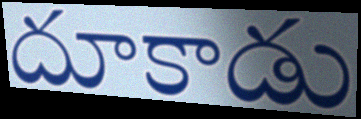
దూకాడు